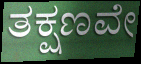
ತಕ್ಷಣವೇ